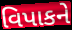
વિપાકને